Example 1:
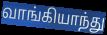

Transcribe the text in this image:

வாங்கியாந்து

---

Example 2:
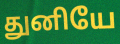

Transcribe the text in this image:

துனியே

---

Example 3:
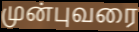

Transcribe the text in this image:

முன்புவரை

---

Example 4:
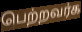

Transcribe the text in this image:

பெற்றவர்க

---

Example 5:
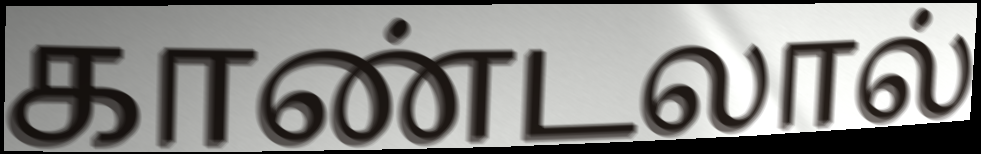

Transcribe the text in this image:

காண்டலால்